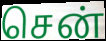
சென்